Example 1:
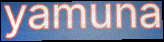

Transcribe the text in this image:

yamuna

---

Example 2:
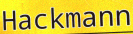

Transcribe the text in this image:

Hackmann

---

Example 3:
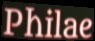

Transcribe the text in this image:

Philae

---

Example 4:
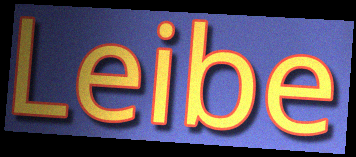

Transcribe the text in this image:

Leibe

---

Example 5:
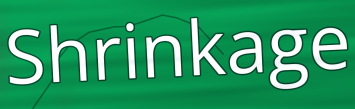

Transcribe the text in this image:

Shrinkage